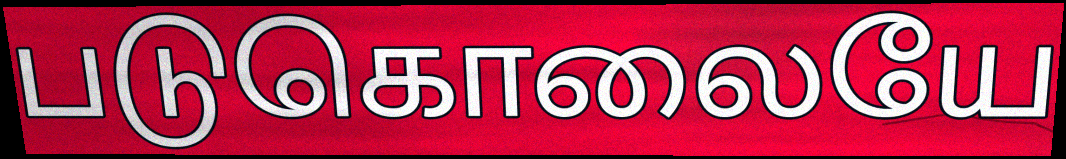
படுகொலையே